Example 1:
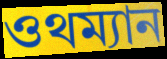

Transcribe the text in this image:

ওথম্যান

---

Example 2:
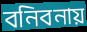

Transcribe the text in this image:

বনিবনায়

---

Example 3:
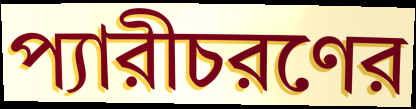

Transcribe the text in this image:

প্যারীচরণের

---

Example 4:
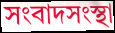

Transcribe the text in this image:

সংবাদসংস্থা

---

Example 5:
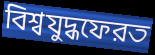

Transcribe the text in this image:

বিশ্বযুদ্ধফেরত